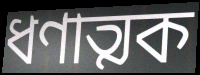
ধণাত্মক